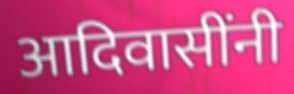
आदिवासींनी